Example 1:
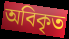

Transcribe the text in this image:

অবিকৃত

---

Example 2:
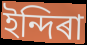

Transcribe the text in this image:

ইন্দিৰা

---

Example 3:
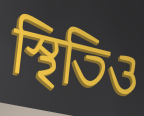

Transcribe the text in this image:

স্থিতিও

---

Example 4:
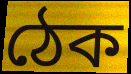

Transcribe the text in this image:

ঠেক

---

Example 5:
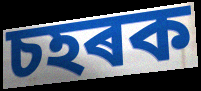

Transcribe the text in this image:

চহৰক